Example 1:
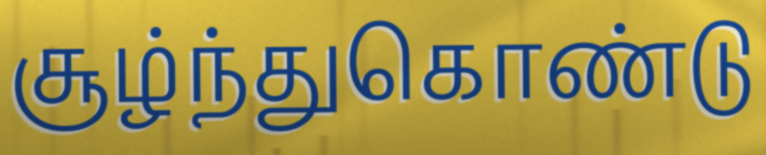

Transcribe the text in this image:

சூழ்ந்துகொண்டு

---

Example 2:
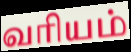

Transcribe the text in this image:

வரியம்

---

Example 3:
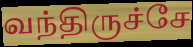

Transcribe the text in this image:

வந்திருச்சே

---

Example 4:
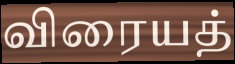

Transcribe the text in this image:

விரையத்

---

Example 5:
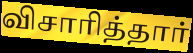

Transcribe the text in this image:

விசாரித்தார்